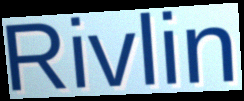
Rivlin